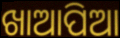
ଖାଆପିଆ